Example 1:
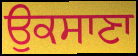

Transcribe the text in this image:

ਉਕਸਾਣਾ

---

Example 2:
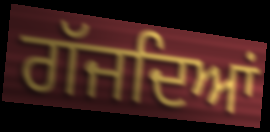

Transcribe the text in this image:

ਗੱਜਦਿਆਂ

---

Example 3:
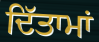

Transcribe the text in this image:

ਦਿੱਤਾਮਾਂ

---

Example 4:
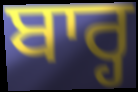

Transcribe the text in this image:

ਬਾਰ੍ਹ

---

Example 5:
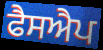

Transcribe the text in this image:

ਫੈਸਐਪ